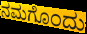
ನಮಗೊಂದು